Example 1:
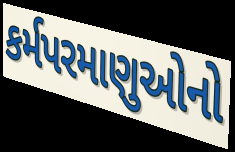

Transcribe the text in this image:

કર્મપરમાણુઓનો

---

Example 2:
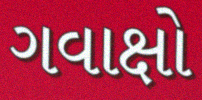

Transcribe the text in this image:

ગવાક્ષો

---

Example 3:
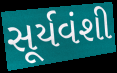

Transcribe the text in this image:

સૂર્યવંશી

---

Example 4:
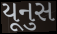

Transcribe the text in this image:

યૂનુસ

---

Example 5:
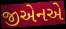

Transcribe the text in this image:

જીએનએ